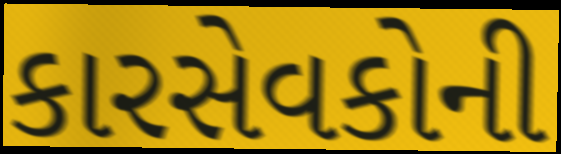
કારસેવકોની